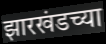
झारखंडच्या